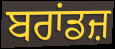
ਬਰਾਂਡਜ਼